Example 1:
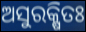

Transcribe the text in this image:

ଅସୁରକ୍ଷିତଃ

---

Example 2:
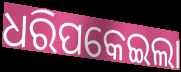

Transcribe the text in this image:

ଧରିପକେଇଲା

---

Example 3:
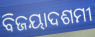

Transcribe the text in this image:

ବିଜୟାଦଶମୀ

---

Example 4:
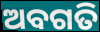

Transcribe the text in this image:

ଅବଗତି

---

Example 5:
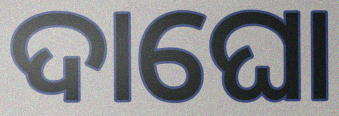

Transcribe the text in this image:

ଦାଘୋ